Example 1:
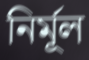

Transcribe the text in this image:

নিৰ্মূল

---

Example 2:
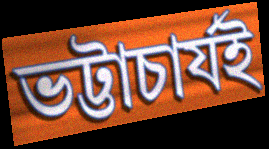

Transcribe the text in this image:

ভট্টাচাৰ্যই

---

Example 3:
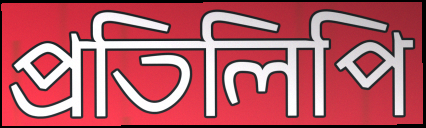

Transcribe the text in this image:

প্ৰতিলিপি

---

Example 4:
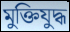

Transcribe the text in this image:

মুক্তিযুদ্ধ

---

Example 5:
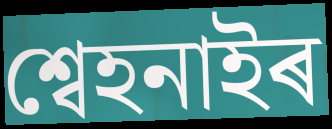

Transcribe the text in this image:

শ্বেহনাইৰ